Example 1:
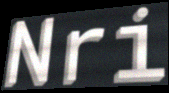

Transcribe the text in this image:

Nri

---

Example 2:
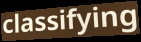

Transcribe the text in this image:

classifying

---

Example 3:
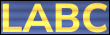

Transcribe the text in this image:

LABC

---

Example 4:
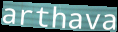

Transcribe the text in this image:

arthava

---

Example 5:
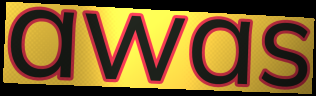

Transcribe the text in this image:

awas